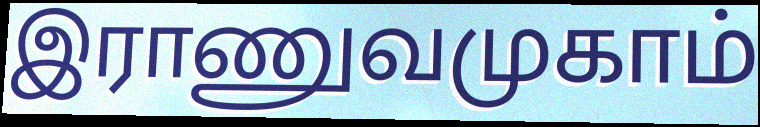
இராணுவமுகாம்